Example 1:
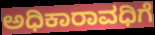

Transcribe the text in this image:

ಅಧಿಕಾರಾವಧಿಗೆ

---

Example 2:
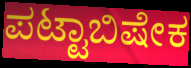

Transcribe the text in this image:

ಪಟ್ಟಾಬಿಷೇಕ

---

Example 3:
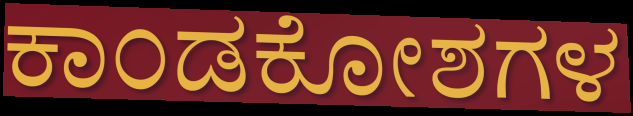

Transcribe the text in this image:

ಕಾಂಡಕೋಶಗಳ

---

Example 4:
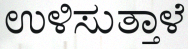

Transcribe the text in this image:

ಉಳಿಸುತ್ತಾಳೆ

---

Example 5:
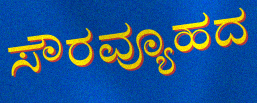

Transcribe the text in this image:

ಸೌರವ್ಯೂಹದ